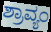
ಶ್ರಾವ್ಯಂ